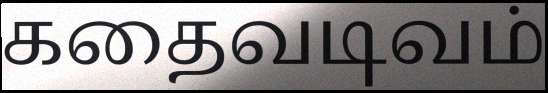
கதைவடிவம்